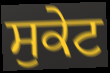
ਸੁਕੇਟ